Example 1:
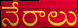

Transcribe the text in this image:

నేరాలు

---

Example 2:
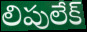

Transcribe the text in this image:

లిపులేక్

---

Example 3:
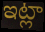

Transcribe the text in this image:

ఇట్లా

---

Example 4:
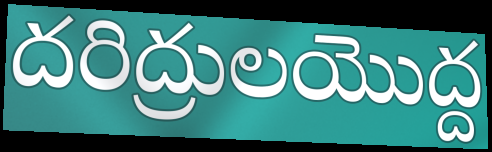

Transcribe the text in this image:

దరిద్రులయొద్ద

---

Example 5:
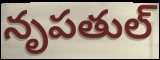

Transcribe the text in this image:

నృపతుల్